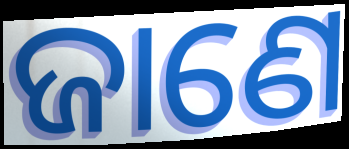
ଜାଣେ